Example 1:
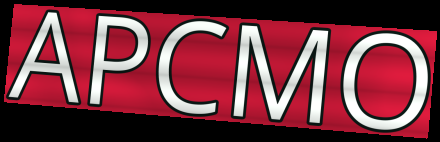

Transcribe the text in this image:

APCMO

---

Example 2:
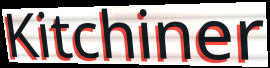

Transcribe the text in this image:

Kitchiner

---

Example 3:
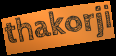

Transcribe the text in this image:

thakorji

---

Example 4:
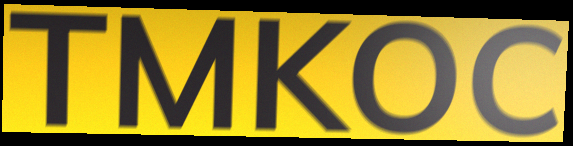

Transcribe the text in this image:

TMKOC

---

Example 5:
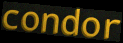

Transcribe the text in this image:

condor